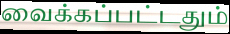
வைக்கப்பட்டதும்